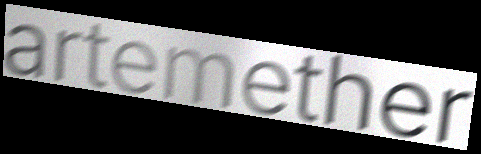
artemether